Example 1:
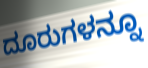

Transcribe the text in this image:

ದೂರುಗಳನ್ನೂ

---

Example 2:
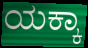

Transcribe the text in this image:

ಯಕ್ಕಾ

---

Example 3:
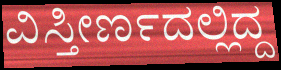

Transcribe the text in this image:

ವಿಸ್ತೀರ್ಣದಲ್ಲಿದ್ದ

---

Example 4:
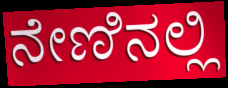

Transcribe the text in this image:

ನೇಣಿನಲ್ಲಿ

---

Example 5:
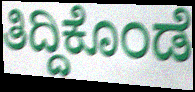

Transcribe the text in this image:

ತಿದ್ದಿಕೊಂಡೆ